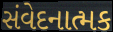
સંવેદનાત્મક